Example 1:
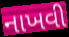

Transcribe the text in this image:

નાખવી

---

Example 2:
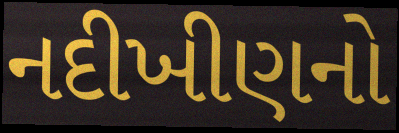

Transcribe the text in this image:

નદીખીણનો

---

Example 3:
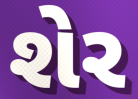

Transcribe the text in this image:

શેર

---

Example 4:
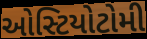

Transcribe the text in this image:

ઓસ્ટિયોટોમી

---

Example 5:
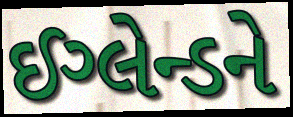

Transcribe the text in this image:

ઈગ્લેન્ડને